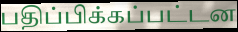
பதிப்பிக்கப்பட்டன